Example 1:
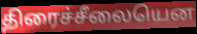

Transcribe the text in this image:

திரைச்சீலையென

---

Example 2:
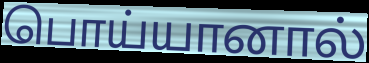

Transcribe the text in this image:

பொய்யானால்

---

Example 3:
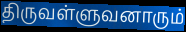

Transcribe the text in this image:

திருவள்ளுவனாரும்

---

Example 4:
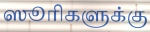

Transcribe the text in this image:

ஸூரிகளுக்கு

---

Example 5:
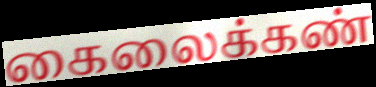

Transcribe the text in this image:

கைலைக்கண்